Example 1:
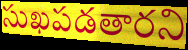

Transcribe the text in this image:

సుఖపడతారని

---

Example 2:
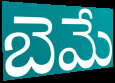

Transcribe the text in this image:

బెమే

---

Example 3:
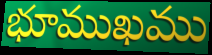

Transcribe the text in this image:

భూముఖము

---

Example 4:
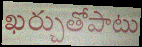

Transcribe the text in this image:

ఖర్చుతోపాటు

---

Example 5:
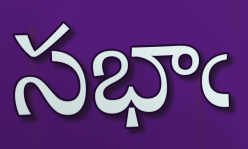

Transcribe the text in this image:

సభాఁ